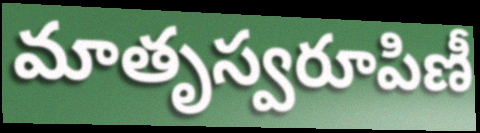
మాతృస్వరూపిణీ